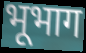
भूभाग